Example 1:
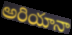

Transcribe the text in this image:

అరియానా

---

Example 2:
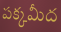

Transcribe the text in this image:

పక్కమీద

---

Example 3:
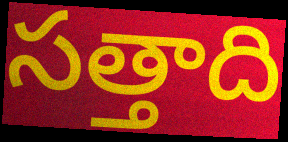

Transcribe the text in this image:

సత్తాది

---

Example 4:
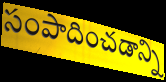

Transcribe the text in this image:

సంపాదించడాన్ని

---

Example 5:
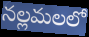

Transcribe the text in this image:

నల్లమలలో